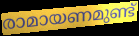
രാമായണമുണ്ട്